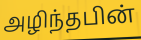
அழிந்தபின்